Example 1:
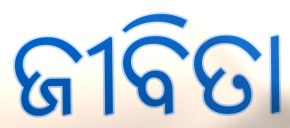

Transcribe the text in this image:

ଜୀବିତା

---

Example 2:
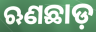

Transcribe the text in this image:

ଋଣଛାଡ଼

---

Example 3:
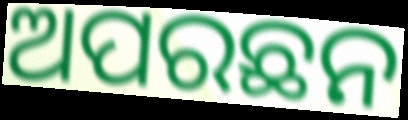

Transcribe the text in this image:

ଅପରଛନ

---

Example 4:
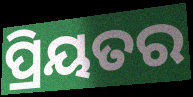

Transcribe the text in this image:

ପ୍ରିୟତର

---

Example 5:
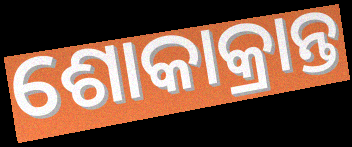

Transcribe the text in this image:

ଶୋକାକ୍ରାନ୍ତ